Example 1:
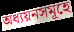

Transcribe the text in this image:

অধ্যয়নসমূহে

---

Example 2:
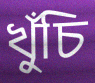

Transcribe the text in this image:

খুঁচি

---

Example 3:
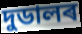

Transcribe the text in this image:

দুডালৰ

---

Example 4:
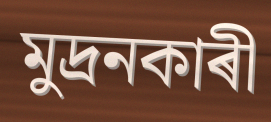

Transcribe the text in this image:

মুদ্ৰনকাৰী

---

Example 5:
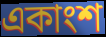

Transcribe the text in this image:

একাংশ